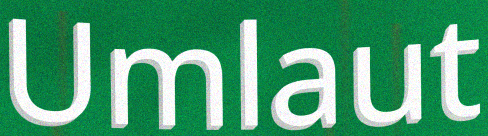
Umlaut